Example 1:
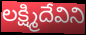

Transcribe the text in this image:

లక్ష్మిదేవిని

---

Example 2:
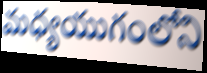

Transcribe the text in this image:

మధ్యయుగంలోని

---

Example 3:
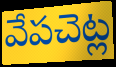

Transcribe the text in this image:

వేపచెట్ల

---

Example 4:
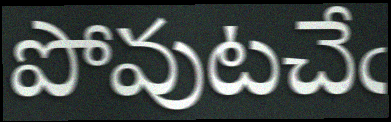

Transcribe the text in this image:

పోవుటచేఁ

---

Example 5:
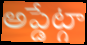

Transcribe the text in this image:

అప్డేట్గా